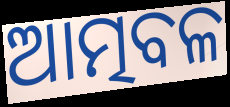
ଆତ୍ମବଳ